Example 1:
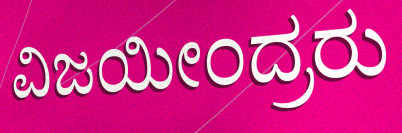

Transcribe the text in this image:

ವಿಜಯೀಂದ್ರರು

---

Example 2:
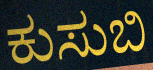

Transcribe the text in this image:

ಕುಸುಬಿ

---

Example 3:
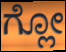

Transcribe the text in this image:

ಗ್ಲೋ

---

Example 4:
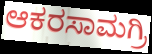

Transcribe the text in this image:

ಆಕರಸಾಮಗ್ರಿ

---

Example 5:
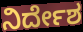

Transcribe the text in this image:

ನಿರ್ದೇಶ